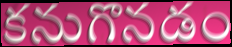
కనుగొనడం